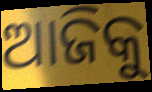
ଆଜିକୁ